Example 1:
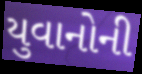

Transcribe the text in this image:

યુવાનોની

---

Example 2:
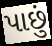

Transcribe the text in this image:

પાછું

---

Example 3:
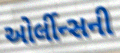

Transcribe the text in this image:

ઓર્લીન્સની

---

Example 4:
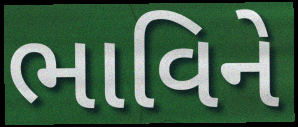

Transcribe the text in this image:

ભાવિને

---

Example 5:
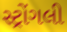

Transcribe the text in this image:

સ્ટ્રોંગલી